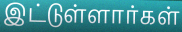
இட்டுள்ளார்கள்